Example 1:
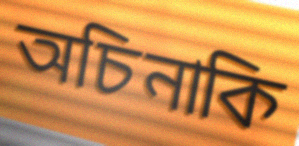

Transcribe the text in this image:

অচিনাকি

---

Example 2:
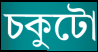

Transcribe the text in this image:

চকুটো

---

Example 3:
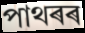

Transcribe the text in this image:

পাথৰৰ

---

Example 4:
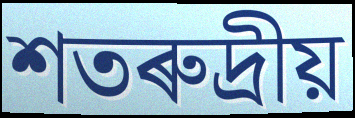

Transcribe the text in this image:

শতৰুদ্ৰীয়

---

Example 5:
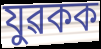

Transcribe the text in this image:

যুৱকক